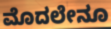
ಮೊದಲೇನೂ